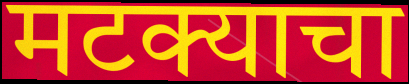
मटक्याचा